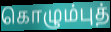
கொழும்புத்